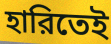
হারিতেই